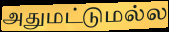
அதுமட்டுமல்ல